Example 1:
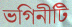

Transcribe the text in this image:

ভগিনীটি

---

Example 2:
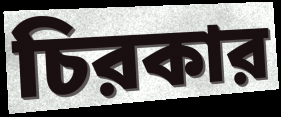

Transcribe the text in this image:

চিরকার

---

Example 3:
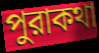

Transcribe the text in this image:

পুরাকথা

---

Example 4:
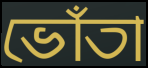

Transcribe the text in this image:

ভোঁতা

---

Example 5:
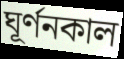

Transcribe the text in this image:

ঘূর্ণনকাল